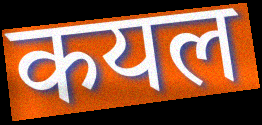
कयल